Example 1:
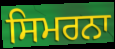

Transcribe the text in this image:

ਸਿਮਰਨਾ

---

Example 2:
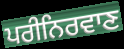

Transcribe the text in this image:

ਪਰੀਨਿਰਵਾਣ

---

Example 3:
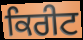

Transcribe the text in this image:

ਕਿਰੀਟ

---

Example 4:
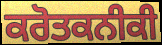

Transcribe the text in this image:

ਕਰੋਤਕਨੀਕੀ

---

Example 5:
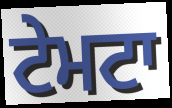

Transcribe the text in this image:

ਟੇਮਟਾ